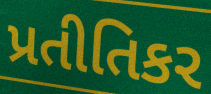
પ્રતીતિકર